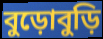
বুড়োবুড়ি